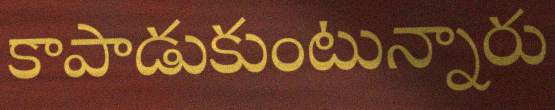
కాపాడుకుంటున్నారు